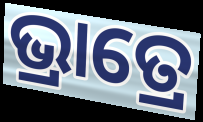
ଭ୍ରାତ୍ରେ